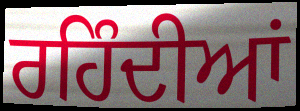
ਰਹਿੰਦੀਆਂ